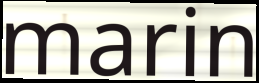
marin